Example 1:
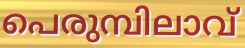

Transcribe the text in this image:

പെരുമ്പിലാവ്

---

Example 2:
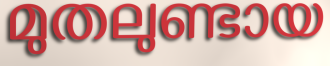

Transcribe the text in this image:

മുതലുണ്ടായ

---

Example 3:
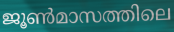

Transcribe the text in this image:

ജൂൺമാസത്തിലെ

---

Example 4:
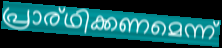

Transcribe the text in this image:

പ്രാര്ഥിക്കണമെന്ന്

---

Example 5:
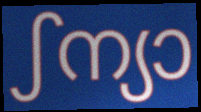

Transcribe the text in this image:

ഽന്യാ